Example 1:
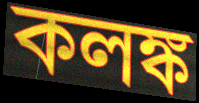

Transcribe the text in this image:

কলঙ্ক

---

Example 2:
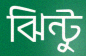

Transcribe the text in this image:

ঝিন্টু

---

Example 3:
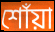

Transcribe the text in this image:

শোঁয়া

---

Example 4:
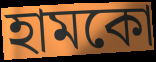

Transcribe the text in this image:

হামকো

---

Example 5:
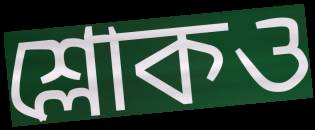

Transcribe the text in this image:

শ্লোকও